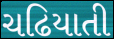
ચઢિયાતી